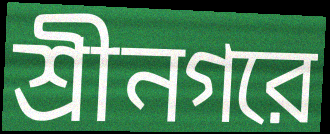
শ্রীনগরে